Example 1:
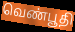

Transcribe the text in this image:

வெண்பூதி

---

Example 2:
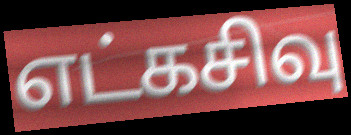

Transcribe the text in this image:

எட்கசிவு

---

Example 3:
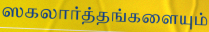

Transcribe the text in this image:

ஸகலார்த்தங்களையும்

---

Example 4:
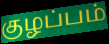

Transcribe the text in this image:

குழப்பம்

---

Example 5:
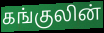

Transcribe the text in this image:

கங்குலின்